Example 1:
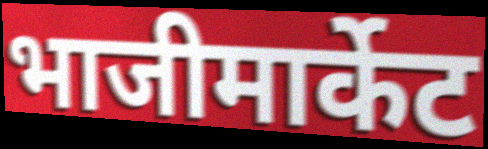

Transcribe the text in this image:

भाजीमार्केट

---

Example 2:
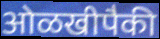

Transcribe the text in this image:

ओळखीपैकी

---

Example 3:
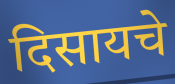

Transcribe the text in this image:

दिसायचे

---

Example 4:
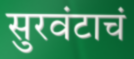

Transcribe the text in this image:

सुरवंटाचं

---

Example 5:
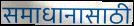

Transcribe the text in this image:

समाधानासाठी